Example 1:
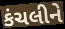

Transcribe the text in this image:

કંચલીને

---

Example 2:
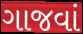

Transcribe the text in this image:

ગાજવાં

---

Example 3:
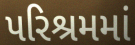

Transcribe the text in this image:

પરિશ્રમમાં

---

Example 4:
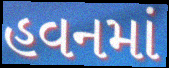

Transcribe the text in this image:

હવનમાં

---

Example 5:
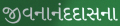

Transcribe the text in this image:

જીવનાનંદદાસના